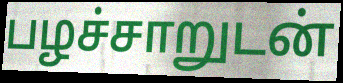
பழச்சாறுடன்